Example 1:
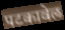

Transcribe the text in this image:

पटकावेल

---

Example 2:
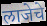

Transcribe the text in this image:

लाजेचे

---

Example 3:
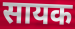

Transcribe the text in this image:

सायक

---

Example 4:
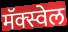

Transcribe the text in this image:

मॅक्स्वेल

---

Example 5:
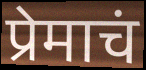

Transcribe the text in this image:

प्रेमाचं